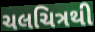
ચલચિત્રથી